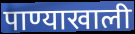
पाण्याखाली